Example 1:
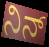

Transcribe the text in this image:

ನಿನ್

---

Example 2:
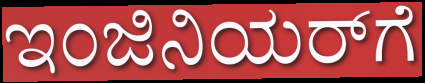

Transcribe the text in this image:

ಇಂಜಿನಿಯರ್‌ಗೆ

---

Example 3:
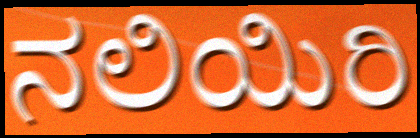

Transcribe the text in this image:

ನಲಿಯಿರಿ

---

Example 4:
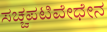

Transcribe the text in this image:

ಸಚ್ಚಪಟಿವೇಧೇನ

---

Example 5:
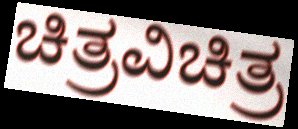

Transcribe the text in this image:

ಚಿತ್ರವಿಚಿತ್ರ